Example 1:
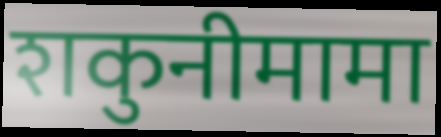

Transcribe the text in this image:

शकुनीमामा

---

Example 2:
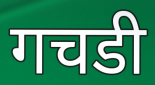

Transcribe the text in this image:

गचडी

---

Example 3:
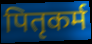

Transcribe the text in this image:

पितृकर्म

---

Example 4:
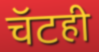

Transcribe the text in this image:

चॅटही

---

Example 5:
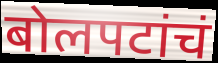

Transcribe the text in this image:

बोलपटांचं